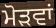
ਮੋੜਵਾਂ